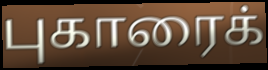
புகாரைக்